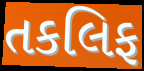
તકલિફ